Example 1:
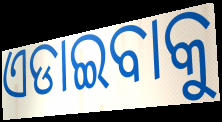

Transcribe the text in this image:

ଏଡାଇବାକୁ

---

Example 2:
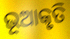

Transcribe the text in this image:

ଭୂଆକୃତି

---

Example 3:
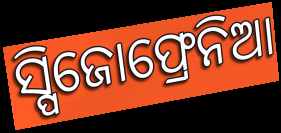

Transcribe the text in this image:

ସ୍ପିଜୋଫ୍ରେନିଆ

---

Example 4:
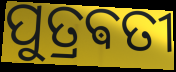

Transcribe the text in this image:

ପୁତ୍ରଵତୀ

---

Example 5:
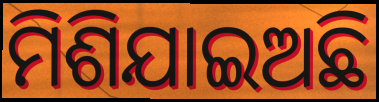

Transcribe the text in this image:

ମିଶିଯାଇଅଛି